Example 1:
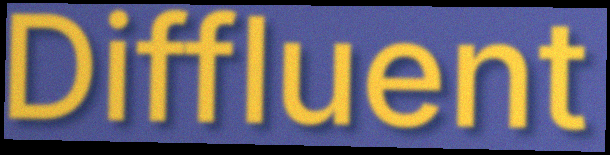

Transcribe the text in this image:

Diffluent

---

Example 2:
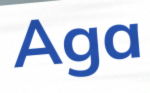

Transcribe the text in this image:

Aga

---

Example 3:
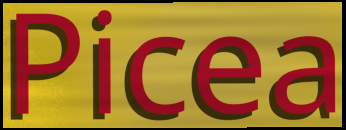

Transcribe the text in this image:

Picea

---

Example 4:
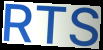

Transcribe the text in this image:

RTS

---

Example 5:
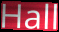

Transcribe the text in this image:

Hall